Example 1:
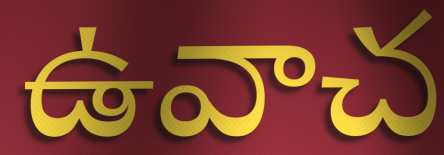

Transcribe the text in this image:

ఉవాచ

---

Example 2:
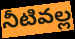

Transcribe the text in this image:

నీటివల్ల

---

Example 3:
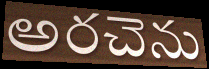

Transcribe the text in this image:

అరచెను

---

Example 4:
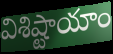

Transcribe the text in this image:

విశిష్టాయాం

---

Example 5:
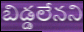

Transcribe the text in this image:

బిడ్డలేనని